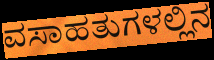
ವಸಾಹತುಗಳಲ್ಲಿನ